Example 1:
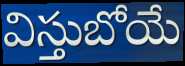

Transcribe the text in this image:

విస్తుబోయే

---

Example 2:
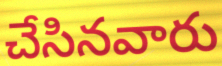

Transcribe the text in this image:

చేసినవారు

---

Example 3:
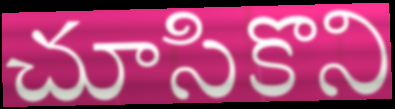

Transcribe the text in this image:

చూసికొని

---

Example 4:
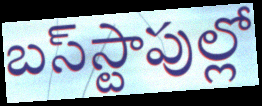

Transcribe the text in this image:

బస్‌స్టాపుల్లో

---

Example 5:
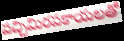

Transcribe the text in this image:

పచ్చిమిరపకాయలతో